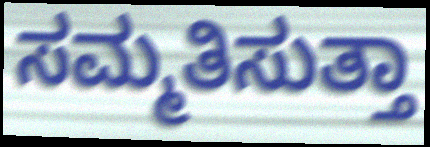
ಸಮ್ಮತಿಸುತ್ತಾ